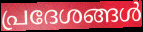
പ്രദേശങ്ങൾ